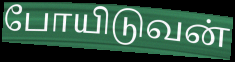
போயிடுவன்